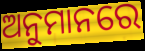
ଅନୁମାନରେ